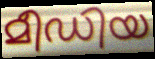
മീഡിയ